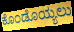
ಕೊಂಡೊಯ್ಯಲು